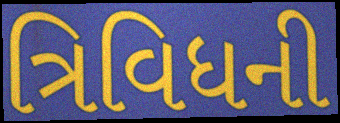
ત્રિવિધની